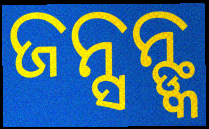
ଜନ୍ସନ୍ଙ୍କ